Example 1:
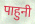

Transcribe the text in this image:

पाहुनी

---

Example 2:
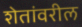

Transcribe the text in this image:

शेतांवरील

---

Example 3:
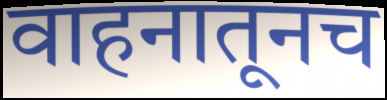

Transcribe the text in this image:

वाहनातूनच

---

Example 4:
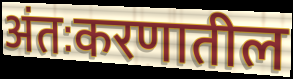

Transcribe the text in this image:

अंतःकरणातील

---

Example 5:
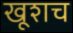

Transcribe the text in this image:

खूशच